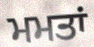
ਮਮਤਾਂ